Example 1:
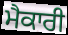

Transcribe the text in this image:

ਮੈਕਾਰੀ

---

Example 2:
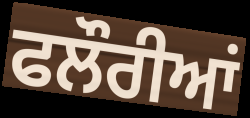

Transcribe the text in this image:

ਫਲੌਰੀਆਂ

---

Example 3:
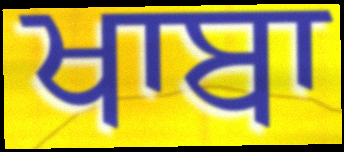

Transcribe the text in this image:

ਖਾਬਾ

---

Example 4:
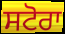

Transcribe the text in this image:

ਸਟੋਰਾ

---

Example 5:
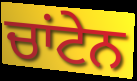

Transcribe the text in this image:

ਚਾਂਟੇਨ